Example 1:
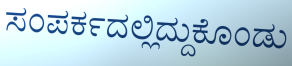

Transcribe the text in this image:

ಸಂಪರ್ಕದಲ್ಲಿದ್ದುಕೊಂಡು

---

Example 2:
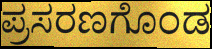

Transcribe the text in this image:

ಪ್ರಸರಣಗೊಂಡ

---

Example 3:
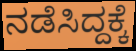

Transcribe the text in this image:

ನಡೆಸಿದ್ದಕ್ಕೆ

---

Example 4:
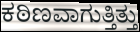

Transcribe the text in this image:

ಕಠಿಣವಾಗುತ್ತಿತ್ತು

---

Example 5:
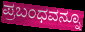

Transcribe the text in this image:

ಪ್ರಬಂಧವನ್ನೂ